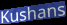
Kushans